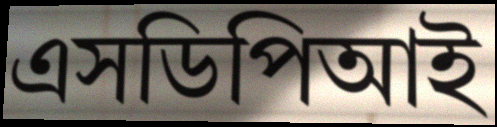
এসডিপিআই